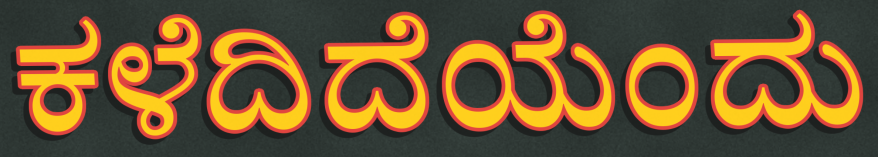
ಕಳೆದಿದೆಯೆಂದು